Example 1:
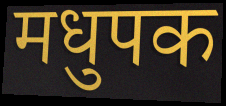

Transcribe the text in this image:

मधुपक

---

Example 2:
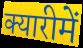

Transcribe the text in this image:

क्यारीमें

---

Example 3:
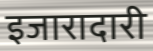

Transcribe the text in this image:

इजारादारी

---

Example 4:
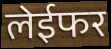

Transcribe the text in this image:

लेईफर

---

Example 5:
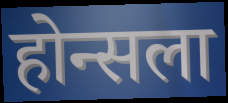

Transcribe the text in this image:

होन्सला